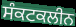
ਸੰਕਟਕਲੀਨ